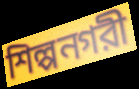
শিল্পনগরী